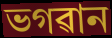
ভগৱান